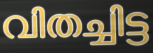
വിതച്ചിട്ട